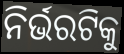
ନିର୍ଭରଟିକୁ